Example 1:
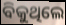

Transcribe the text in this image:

ବିକୁଥିଲେ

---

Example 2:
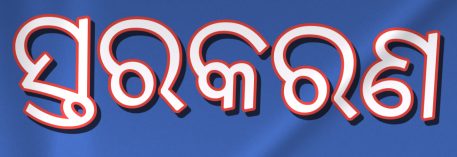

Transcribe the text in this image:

ସ୍ତରକରଣ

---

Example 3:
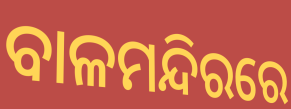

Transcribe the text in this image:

ବାଳମନ୍ଦିରରେ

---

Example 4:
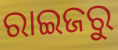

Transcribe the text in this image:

ରାଇଜରୁ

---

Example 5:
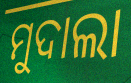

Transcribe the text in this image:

ମୁଦାଲା